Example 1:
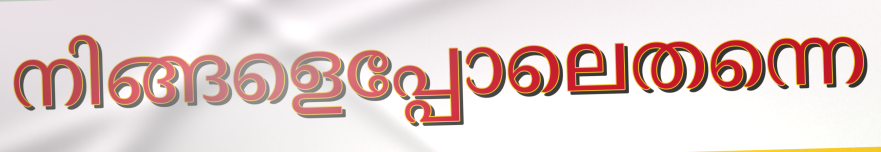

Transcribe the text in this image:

നിങ്ങളെപ്പോലെതന്നെ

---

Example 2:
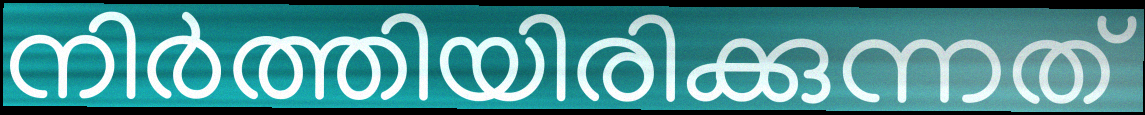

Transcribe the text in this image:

നിർത്തിയിരിക്കുന്നത്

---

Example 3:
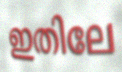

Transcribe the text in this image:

ഇതിലേ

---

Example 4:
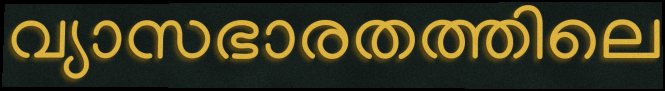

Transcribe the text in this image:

വ്യാസഭാരതത്തിലെ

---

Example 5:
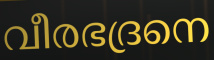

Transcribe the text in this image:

വീരഭദ്രനെ